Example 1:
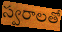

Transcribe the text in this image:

స్వరాలతో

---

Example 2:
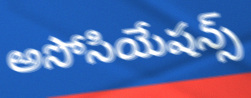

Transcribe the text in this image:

అసోసియేషన్స్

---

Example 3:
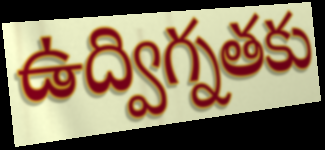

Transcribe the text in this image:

ఉద్విగ్నతకు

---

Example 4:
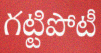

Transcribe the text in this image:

గట్టిపోటీ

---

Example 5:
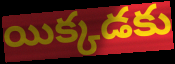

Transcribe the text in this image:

యిక్కడకు